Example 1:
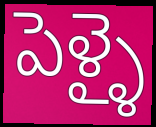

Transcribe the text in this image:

పెళ్ళై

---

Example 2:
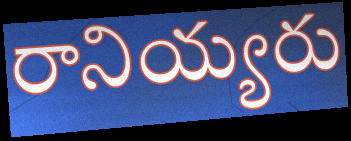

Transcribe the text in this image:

రానియ్యరు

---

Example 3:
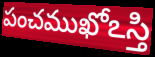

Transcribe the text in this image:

పంచముఖోఽస్తి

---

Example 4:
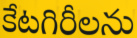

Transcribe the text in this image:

కేటగిరీలను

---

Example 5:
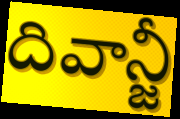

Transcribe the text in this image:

దివాన్జీ